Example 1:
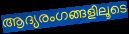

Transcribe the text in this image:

ആദ്യരംഗങ്ങളിലൂടെ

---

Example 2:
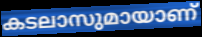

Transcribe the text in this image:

കടലാസുമായാണ്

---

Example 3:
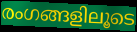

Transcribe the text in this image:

രംഗങ്ങളിലൂടെ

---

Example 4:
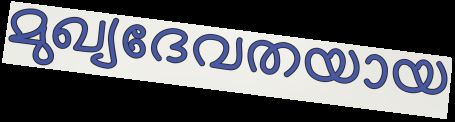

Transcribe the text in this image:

മുഖ്യദേവതയായ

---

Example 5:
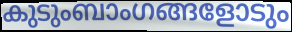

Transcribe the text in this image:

കുടുംബാംഗങ്ങളോടും